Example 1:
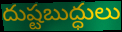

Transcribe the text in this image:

దుష్టబుద్ధులు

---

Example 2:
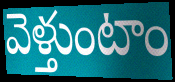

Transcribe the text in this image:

వెళ్తుంటాం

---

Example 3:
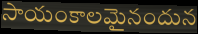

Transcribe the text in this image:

సాయంకాలమైనందున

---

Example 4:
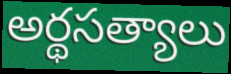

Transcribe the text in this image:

అర్థసత్యాలు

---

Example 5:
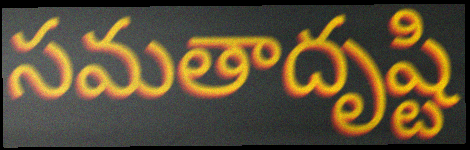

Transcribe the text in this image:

సమతాదృష్టి